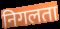
निगलता